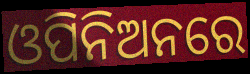
ଓପିନିଅନରେ